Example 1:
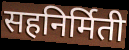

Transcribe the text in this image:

सहनिर्मिती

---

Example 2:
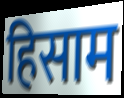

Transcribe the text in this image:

हिसाम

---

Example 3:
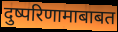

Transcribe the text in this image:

दुष्परिणामाबाबत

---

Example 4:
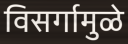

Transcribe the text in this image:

विसर्गामुळे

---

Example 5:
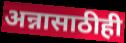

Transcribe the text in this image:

अन्नासाठीही